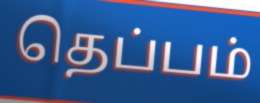
தெப்பம்